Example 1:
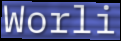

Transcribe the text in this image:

Worli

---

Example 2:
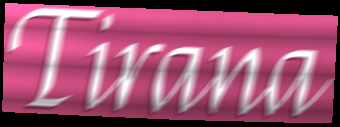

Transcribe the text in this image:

Tirana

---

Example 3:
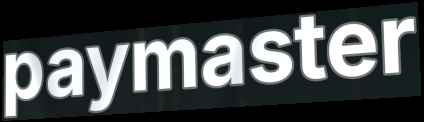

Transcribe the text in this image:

paymaster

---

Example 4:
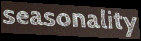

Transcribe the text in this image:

seasonality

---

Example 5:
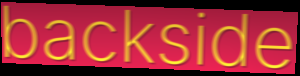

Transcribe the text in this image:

backside